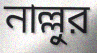
নাল্লুর